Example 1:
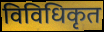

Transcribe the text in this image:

विविधिकृत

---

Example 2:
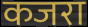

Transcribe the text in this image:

कजरा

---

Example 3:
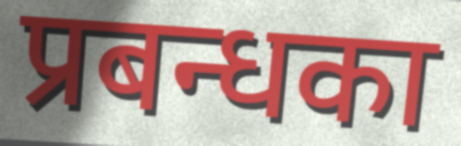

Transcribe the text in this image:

प्रबन्धका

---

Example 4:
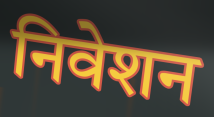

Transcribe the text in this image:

निवेशन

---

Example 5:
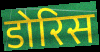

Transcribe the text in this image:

डोरिस